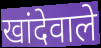
खांदेवाले